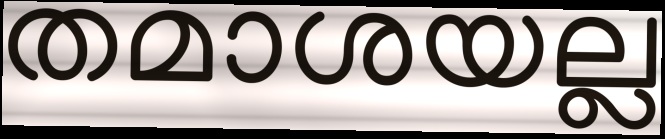
തമാശയല്ല